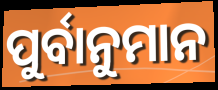
ପୁର୍ବାନୁମାନ